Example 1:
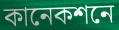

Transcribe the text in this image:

কানেকশনে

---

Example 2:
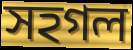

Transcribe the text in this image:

সহগল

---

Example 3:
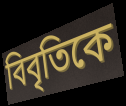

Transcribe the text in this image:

বিবৃতিকে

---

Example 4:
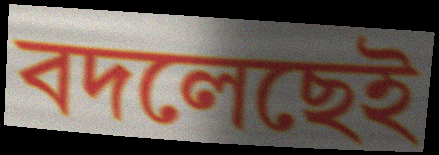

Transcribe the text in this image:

বদলেছেই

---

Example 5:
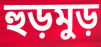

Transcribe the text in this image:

হুড়মুড়